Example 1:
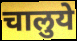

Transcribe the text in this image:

चालुये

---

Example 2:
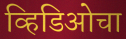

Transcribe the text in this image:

व्हिडिओचा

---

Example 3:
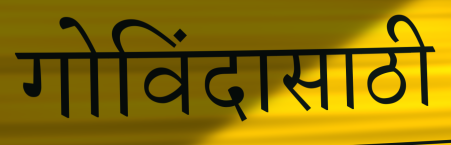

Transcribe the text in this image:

गोविंदासाठी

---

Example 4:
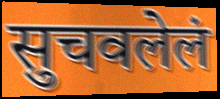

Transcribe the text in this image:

सुचवलेलं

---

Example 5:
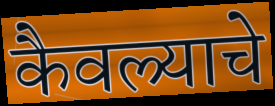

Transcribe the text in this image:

कैवल्याचे